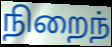
நிறைந்